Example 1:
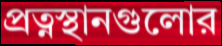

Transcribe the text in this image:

প্রত্নস্থানগুলোর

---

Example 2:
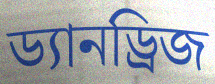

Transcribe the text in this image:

ড্যানড্রিজ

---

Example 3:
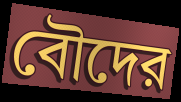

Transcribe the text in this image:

বৌদের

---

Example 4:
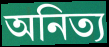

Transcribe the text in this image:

অনিত্য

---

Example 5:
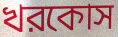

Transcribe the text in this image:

খরকোস